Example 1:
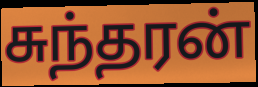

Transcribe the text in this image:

சுந்தரன்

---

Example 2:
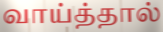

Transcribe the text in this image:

வாய்த்தால்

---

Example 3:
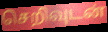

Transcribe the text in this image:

செறிவுடன்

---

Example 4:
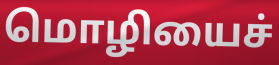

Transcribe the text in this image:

மொழியைச்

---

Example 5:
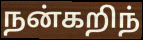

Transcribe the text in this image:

நன்கறிந்